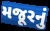
મજૂરનું